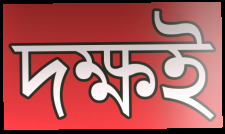
দক্ষই